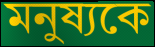
মনুষ্যকে